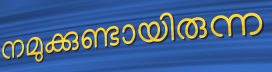
നമുക്കുണ്ടായിരുന്ന